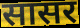
सासर